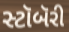
સ્ટૉબૅરી